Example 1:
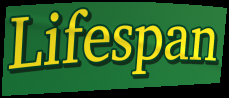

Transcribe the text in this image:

Lifespan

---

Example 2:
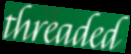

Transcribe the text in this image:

threaded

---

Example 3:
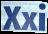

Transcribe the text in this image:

Xxi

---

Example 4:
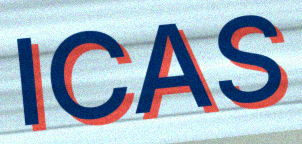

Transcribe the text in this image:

ICAS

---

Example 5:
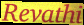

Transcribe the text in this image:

Revathi